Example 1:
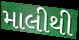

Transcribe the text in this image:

માલીથી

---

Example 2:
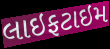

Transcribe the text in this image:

લાઇફટાઇમ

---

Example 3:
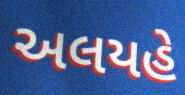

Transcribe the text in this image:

અલયહે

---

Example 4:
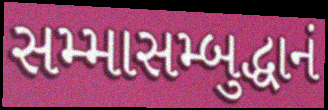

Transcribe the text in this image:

સમ્માસમ્બુદ્ધાનં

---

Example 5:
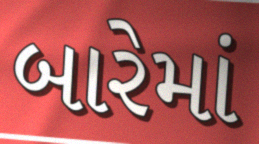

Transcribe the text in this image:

બારેમાં